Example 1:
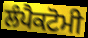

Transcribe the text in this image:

ਲੰਪੈਕਟੋਮੀ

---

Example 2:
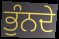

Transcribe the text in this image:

ਭੁੰਨਦੇ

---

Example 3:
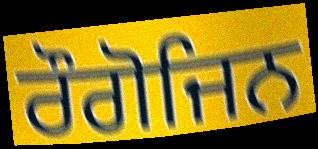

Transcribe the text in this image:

ਰੌਗੋਜਿਨ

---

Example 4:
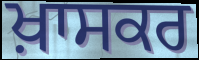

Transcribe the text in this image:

ਖ਼ਾਸਕਰ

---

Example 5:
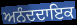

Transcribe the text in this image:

ਅਨੰਦਦਾਇਕ